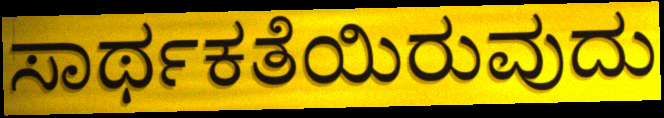
ಸಾರ್ಥಕತೆಯಿರುವುದು